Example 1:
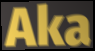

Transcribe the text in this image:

Aka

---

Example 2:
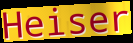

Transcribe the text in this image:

Heiser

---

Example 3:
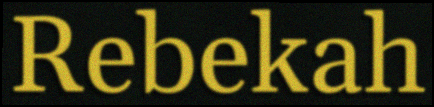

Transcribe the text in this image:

Rebekah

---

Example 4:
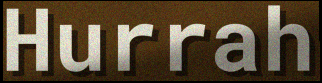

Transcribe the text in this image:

Hurrah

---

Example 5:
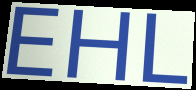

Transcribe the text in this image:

EHL